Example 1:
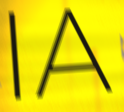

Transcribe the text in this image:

IA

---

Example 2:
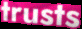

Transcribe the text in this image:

trusts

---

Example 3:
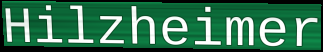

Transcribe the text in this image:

Hilzheimer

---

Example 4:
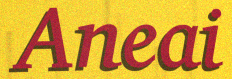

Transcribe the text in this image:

Aneai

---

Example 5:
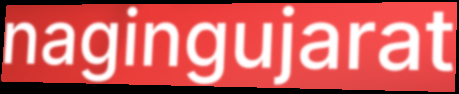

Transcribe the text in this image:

nagingujarat